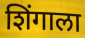
शिंगाला